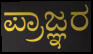
ಪ್ರಾಜ್ಞರ